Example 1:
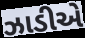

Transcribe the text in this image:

ઝાડીએ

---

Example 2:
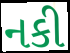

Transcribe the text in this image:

નકી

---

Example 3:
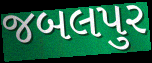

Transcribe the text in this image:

જબલપુર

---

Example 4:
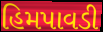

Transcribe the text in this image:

હિમપાવડી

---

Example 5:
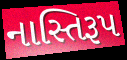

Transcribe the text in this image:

નાસ્તિરૂપ